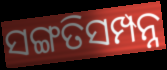
ସଙ୍ଗତିସମ୍ପନ୍ନ